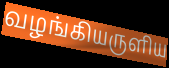
வழங்கியருளிய